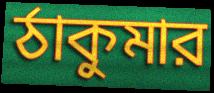
ঠাকুমার